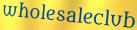
wholesaleclub